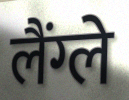
लैंग्ले